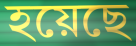
হয়েছে